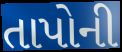
તાપોની